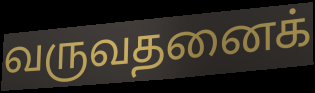
வருவதனைக்